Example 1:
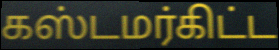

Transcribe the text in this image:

கஸ்டமர்கிட்ட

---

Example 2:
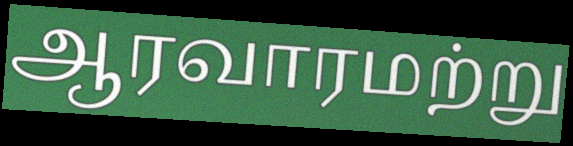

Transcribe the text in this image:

ஆரவாரமற்று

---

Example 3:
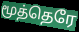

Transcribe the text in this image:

மூத்தெரே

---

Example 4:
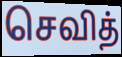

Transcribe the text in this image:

செவித்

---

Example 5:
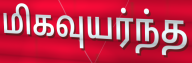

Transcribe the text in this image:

மிகவுயர்ந்த